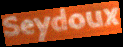
Seydoux